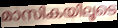
മാസികയിലൂടെ